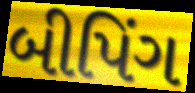
બીપિંગ